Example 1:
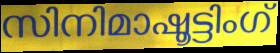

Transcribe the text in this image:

സിനിമാഷൂട്ടിംഗ്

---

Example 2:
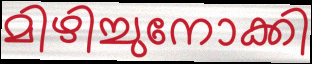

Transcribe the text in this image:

മിഴിച്ചുനോക്കി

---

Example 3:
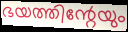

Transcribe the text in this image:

ഭയത്തിന്റേയും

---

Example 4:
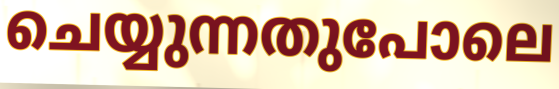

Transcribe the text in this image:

ചെയ്യുന്നതുപോലെ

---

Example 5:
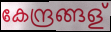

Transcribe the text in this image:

കേന്ദ്രങ്ങള്